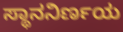
ಸ್ಥಾನನಿರ್ಣಯ